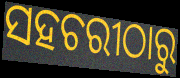
ସହଚରୀଠାରୁ